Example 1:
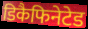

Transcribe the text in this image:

डिकैफिनेटेड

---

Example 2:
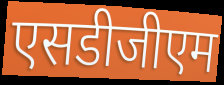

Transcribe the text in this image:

एसडीजीएम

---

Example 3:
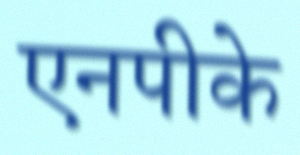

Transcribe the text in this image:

एनपीके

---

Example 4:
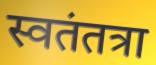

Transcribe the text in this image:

स्वतंतत्रा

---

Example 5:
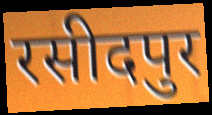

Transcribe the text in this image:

रसीदपुर